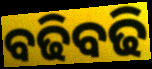
ବଢିବଢି